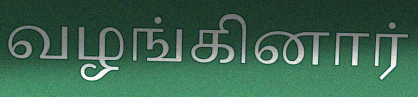
வழங்கினார்